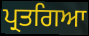
ਪ੍ਰਤਗਿਆ